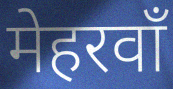
मेहरवाँ